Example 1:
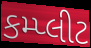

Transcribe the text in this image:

કમ્પ્લીટ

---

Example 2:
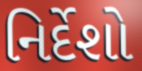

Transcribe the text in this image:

નિર્દેશો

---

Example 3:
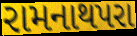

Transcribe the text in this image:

રામનાથપરા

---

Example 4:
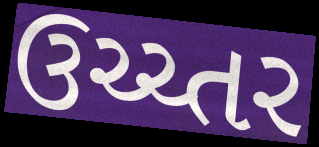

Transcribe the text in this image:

ઉચ્ચ્તર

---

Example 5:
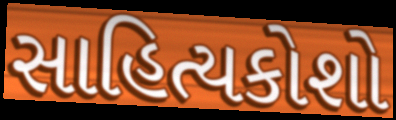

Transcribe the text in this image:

સાહિત્યકોશો